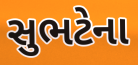
સુભટેના